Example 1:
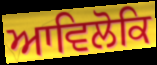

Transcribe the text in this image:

ਆਵਿਲੋਕਿ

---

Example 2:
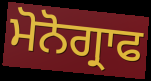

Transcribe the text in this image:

ਮੋਨੋਗ੍ਰਾਫ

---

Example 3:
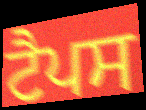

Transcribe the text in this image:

ਟੈਪਸ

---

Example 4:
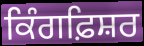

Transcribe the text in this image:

ਕਿੰਗਫ਼ਿਸ਼ਰ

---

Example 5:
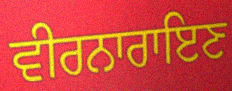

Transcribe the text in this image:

ਵੀਰਨਾਰਾਇਣ